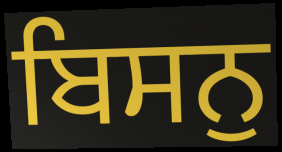
ਬਿਸਨੁ